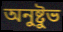
অনুষ্টুভ